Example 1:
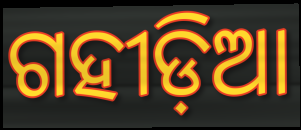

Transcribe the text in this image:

ଗହୀଡ଼ିଆ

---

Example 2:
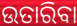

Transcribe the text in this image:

ଉତାରିବା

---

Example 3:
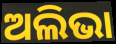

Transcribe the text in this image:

ଅଲିଭା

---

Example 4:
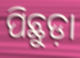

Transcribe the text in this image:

ପିଛୁଡ଼ା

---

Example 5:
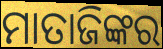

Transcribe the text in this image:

ମାତାଜିଙ୍କର